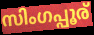
സിംഗപ്പൂര്